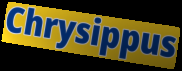
Chrysippus